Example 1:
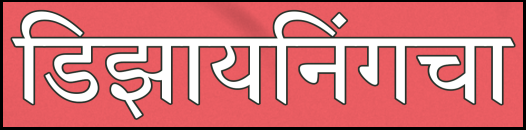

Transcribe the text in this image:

डिझायनिंगचा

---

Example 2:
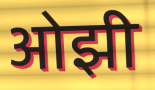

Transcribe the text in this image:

ओझी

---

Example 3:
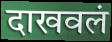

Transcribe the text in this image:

दाखवलं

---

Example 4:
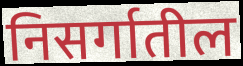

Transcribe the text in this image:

निसर्गातील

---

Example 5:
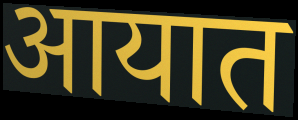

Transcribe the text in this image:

आयात